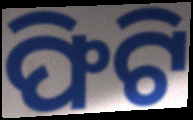
ଫିଟି